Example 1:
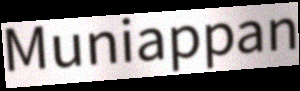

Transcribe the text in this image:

Muniappan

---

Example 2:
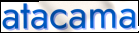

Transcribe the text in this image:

atacama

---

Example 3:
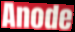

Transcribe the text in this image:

Anode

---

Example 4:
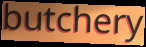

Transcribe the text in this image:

butchery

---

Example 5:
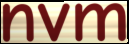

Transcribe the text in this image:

nvm